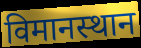
विमानस्थान